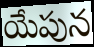
యేపున